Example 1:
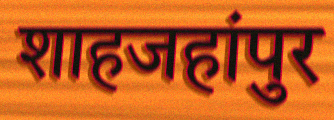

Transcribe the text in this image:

शाहजहांपुर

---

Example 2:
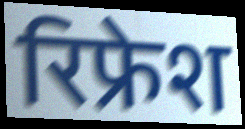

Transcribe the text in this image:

रिफ्रेश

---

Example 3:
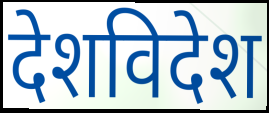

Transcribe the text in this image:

देशविदेश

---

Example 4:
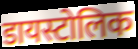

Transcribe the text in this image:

डायस्टोलिक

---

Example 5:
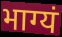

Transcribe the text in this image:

भाग्यं